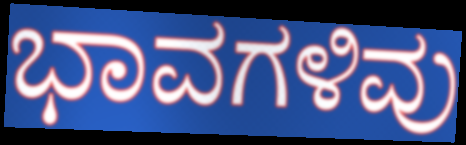
ಭಾವಗಳಿವು